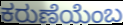
ಕರುಣೆಯೆಂಬ